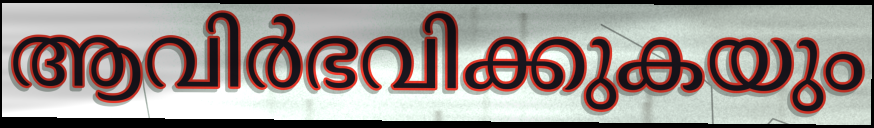
ആവിർഭവിക്കുകയും